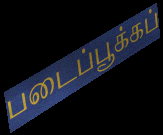
படைப்பூக்கப்